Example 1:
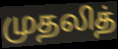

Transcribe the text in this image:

முதலித்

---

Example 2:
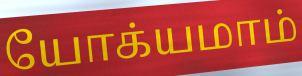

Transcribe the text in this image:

யோக்யமாம்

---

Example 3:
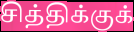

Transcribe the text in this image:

சித்திக்குக்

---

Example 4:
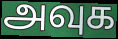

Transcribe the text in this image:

அவுக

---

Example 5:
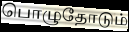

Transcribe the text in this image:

பொழுதோடும்